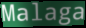
Malaga